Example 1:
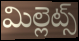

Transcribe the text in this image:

మిల్లెట్స్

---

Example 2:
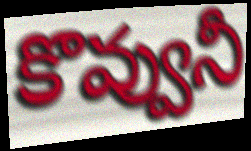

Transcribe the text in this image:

కొవ్వునీ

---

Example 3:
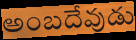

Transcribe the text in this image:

అంబదేవుడు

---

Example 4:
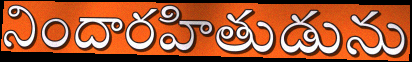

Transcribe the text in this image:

నిందారహితుడును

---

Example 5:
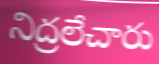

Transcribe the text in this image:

నిద్రలేచారు